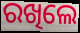
ରଖିଲେ